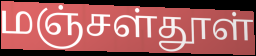
மஞ்சள்தூள்